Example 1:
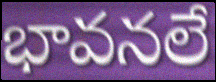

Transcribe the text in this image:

భావనలే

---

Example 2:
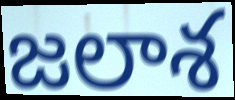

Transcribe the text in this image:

జలాశ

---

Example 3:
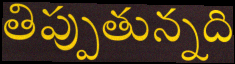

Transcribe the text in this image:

తిప్పుతున్నది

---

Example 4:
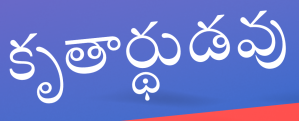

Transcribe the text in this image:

కృతార్థుడవు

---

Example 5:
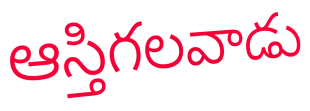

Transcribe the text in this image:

ఆస్తిగలవాడు